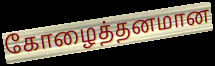
கோழைத்தனமான